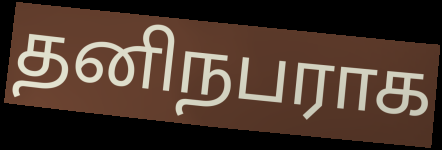
தனிநபராக